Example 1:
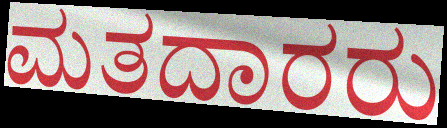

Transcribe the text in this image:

ಮತದಾರರು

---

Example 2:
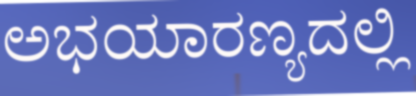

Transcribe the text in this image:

ಅಭಯಾರಣ್ಯದಲ್ಲಿ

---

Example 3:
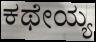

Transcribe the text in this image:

ಕಥೇಯ್ಯ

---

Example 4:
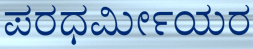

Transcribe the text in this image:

ಪರಧರ್ಮೀಯರ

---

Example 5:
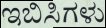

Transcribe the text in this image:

ಇಬಿಸಿಗಳು